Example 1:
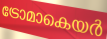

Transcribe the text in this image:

ട്രോമാകെയർ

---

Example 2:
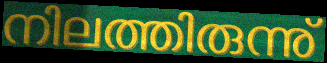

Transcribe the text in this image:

നിലത്തിരുന്നു്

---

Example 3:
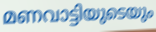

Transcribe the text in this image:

മണവാട്ടിയുടെയും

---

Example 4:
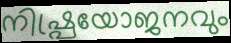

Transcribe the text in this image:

നിഷ്പ്രയോജനവും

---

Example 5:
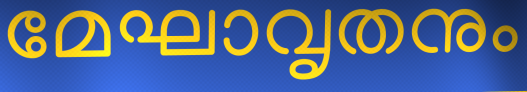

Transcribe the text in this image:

മേഘാവൃതനും